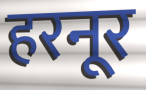
हरनूर